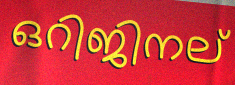
ഒറിജിനല്